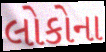
લોકોના